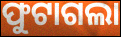
ଫୁଟାଗଲା